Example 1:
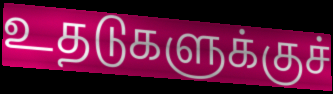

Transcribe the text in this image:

உதடுகளுக்குச்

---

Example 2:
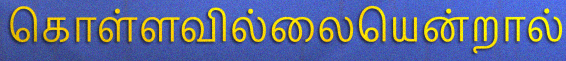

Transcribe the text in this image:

கொள்ளவில்லையென்றால்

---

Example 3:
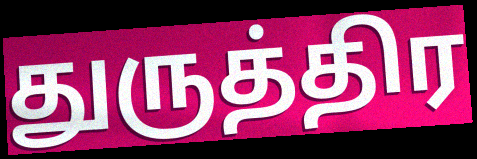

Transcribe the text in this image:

துருத்திர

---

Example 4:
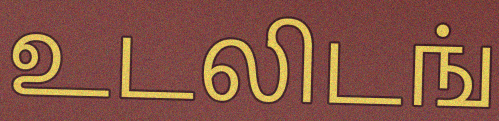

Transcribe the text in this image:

உடலிடங்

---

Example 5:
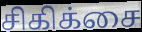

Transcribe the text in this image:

சிகிக்சை